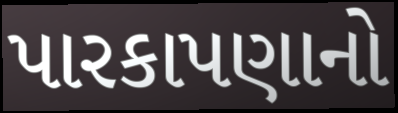
પારકાપણાનો